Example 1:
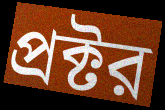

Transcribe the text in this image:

প্রক্টর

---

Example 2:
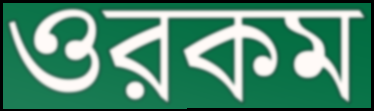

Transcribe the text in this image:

ওরকম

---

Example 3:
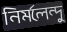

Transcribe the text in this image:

নির্মলেন্দু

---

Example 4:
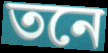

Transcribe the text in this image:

তনে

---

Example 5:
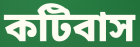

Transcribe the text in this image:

কটিবাস